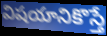
విషయానికొస్తే